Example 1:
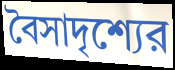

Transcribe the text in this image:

বৈসাদৃশ্যের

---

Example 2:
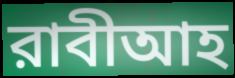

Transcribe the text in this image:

রাবীআহ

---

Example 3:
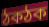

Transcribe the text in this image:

ঠকঠক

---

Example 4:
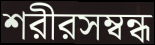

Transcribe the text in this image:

শরীরসম্বন্ধ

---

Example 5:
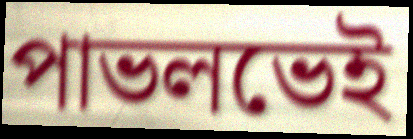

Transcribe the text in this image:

পাভলভেই